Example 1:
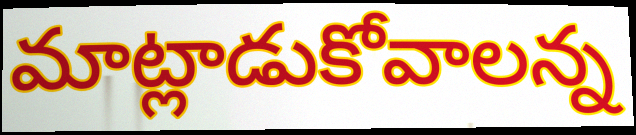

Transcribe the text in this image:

మాట్లాడుకోవాలన్న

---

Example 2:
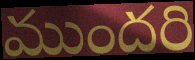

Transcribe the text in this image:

ముందరి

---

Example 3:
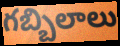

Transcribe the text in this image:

గబ్బిలాలు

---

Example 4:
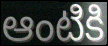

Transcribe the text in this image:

ఆంటికి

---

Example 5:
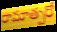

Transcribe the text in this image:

రామాత్పరో